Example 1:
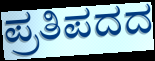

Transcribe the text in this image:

ಪ್ರತಿಪದದ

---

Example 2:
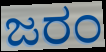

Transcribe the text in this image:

ಜರಂ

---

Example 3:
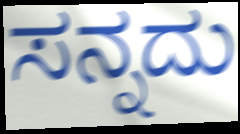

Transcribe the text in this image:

ಸನ್ನದು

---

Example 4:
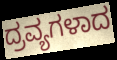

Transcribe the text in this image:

ದ್ರವ್ಯಗಳಾದ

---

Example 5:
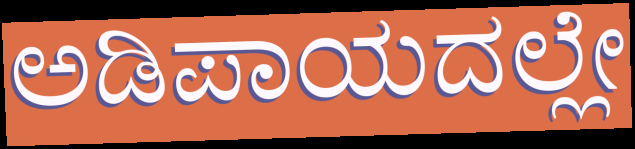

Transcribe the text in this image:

ಅಡಿಪಾಯದಲ್ಲೇ